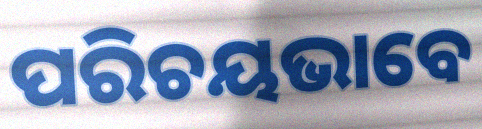
ପରିଚୟଭାବେ